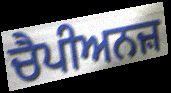
ਚੈਪੀਅਨਜ਼